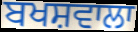
ਬਖਸ਼ਵਾਲਾ